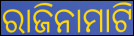
ରାଜିନାମାଟି